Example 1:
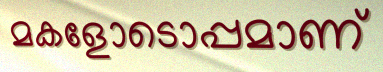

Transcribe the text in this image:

മകളോടൊപ്പമാണ്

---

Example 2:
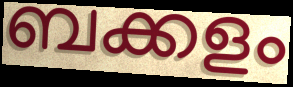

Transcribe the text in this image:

ബക്കളം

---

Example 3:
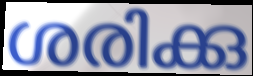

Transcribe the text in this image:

ശരിക്കു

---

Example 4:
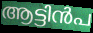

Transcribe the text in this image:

ആട്ടിൻപ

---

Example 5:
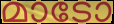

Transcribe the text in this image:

മാടോ